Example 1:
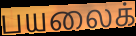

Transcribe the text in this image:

பயலைக்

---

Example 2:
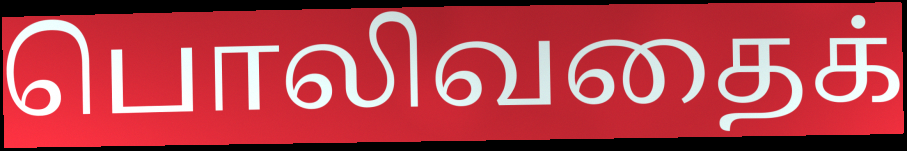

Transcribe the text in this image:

பொலிவதைக்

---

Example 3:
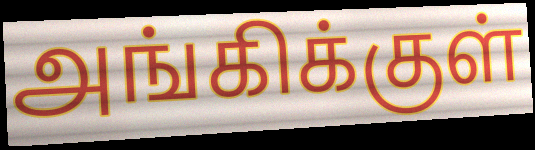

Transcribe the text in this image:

அங்கிக்குள்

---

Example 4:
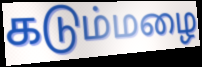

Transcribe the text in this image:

கடும்மழை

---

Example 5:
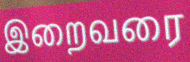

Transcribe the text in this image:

இறைவரை